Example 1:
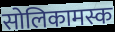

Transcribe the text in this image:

सोलिकामस्क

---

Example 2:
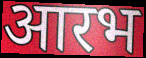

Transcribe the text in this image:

आरभ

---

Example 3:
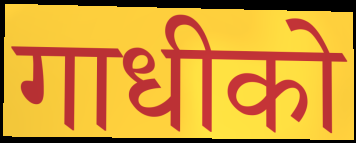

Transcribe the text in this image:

गाधीको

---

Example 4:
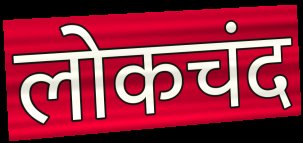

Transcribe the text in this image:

लोकचंद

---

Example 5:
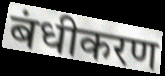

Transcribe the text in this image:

बंधीकरण